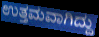
ಉತ್ತಮವಾಗಿದ್ದು